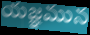
యజ్ఞమున